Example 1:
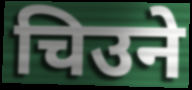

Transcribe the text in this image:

चिउने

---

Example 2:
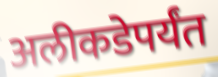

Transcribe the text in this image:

अलीकडेपर्यंत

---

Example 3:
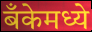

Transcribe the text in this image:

बँकेमध्ये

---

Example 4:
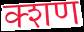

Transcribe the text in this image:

क्शण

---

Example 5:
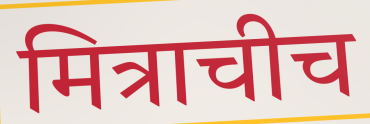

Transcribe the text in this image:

मित्राचीच